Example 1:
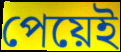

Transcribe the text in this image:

পেয়েই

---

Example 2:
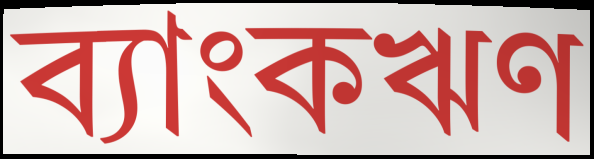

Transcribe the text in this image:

ব্যাংকঋণ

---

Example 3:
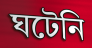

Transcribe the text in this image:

ঘটেনি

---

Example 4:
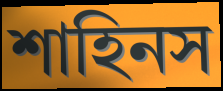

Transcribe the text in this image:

শাহিনস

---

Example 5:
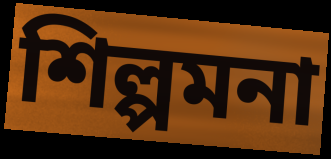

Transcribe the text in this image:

শিল্পমনা